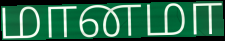
மானமா